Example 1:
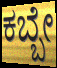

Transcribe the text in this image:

ಕಬ್ಬೇ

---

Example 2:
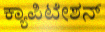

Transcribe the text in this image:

ಕ್ಯಾಪಿಟೇಶನ್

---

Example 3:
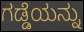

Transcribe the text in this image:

ಗಡ್ಡೆಯನ್ನು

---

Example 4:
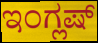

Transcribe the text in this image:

ಇಂಗ್ಲಷ್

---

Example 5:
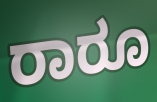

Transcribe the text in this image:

ರಾರೂ